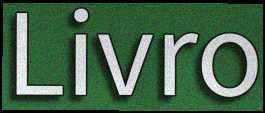
Livro